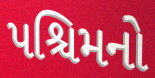
પશ્ચિમનો